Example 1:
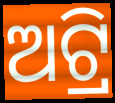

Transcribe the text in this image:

ଅଟ୍ରି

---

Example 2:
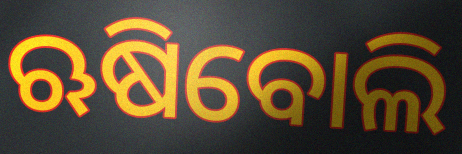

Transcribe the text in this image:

ଋଷିବୋଲି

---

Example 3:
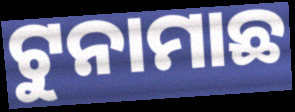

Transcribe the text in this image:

ଟୁନାମାଛ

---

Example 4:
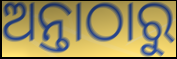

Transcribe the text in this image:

ଅନ୍ତାଠାରୁ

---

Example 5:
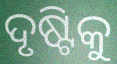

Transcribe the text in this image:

ଦୃଷ୍ଟିକୁ